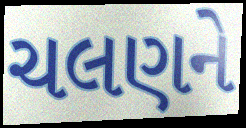
ચલણને